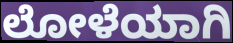
ಲೋಳೆಯಾಗಿ